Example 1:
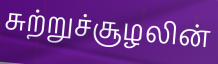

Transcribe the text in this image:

சுற்றுச்சூழலின்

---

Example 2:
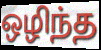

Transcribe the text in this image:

ஒழிந்த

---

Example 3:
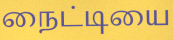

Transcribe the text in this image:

நைட்டியை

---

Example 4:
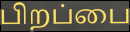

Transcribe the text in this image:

பிறப்பை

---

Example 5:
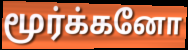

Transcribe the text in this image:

மூர்க்கனோ